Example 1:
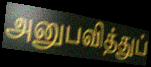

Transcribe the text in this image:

அனுபவித்துப்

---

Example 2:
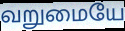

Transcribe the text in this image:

வறுமையே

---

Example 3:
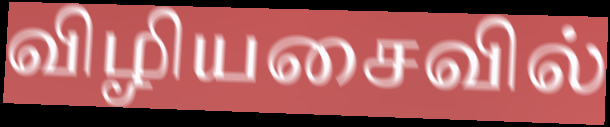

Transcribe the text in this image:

விழியசைவில்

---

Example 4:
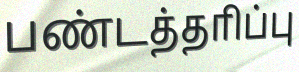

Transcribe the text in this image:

பண்டத்தரிப்பு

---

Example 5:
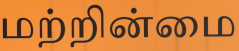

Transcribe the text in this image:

மற்றின்மை